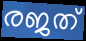
രജത്